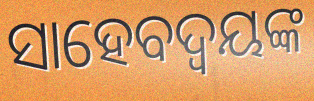
ସାହେବଦ୍ୱୟଙ୍କ